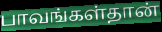
பாவங்கள்தான்